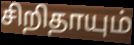
சிறிதாயும்